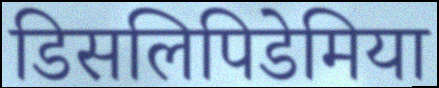
डिसलिपिडेमिया